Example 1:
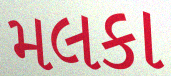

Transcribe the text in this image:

મલકા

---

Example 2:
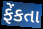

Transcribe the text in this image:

ફેંકતા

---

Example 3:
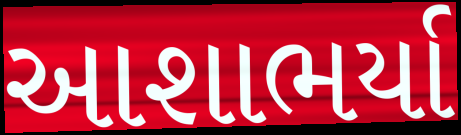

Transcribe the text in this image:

આશાભર્યા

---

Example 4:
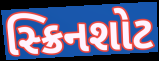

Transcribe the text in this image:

સ્ક્રિનશોટ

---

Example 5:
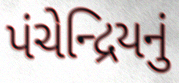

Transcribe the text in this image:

પંચેન્દ્રિયનું